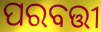
ପରବତ୍ତୀ